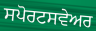
ਸਪੋਰਟਸਵੇਅਰ